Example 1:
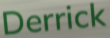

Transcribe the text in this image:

Derrick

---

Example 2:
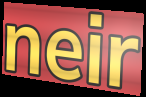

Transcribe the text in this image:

neir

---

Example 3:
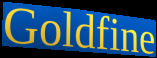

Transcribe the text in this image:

Goldfine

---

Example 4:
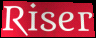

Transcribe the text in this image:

Riser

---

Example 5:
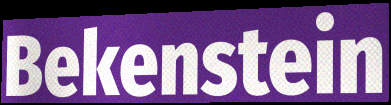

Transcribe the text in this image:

Bekenstein